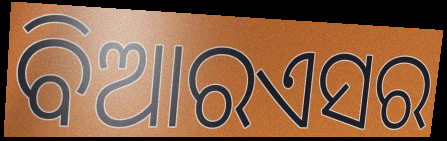
ବିଆରଏସର